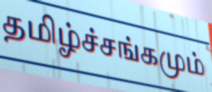
தமிழ்ச்சங்கமும்